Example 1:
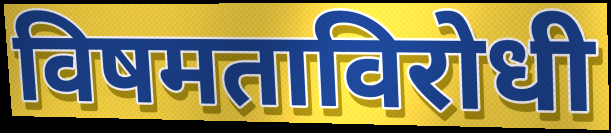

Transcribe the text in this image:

विषमताविरोधी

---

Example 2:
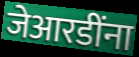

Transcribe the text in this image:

जेआरडींना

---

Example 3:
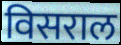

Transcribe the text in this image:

विसराल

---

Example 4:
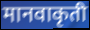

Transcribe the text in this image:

मानवाकृती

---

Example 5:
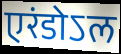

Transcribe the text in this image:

एरंडोऽल